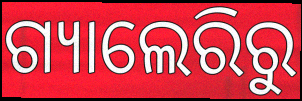
ଗ୍ୟାଲେରିରୁ